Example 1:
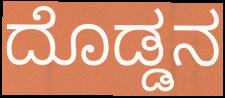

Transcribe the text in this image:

ದೊಡ್ಡನ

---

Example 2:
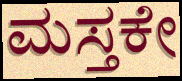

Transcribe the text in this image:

ಮಸ್ತಕೇ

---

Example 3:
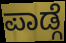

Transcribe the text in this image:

ಪಾಡ್ಗೆ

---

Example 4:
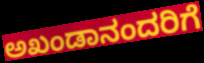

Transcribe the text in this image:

ಅಖಂಡಾನಂದರಿಗೆ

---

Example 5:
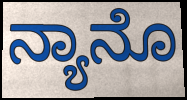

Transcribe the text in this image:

ನ್ಯಾನೊ